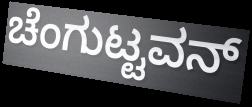
ಚೆಂಗುಟ್ಟವನ್